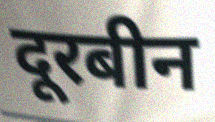
दूरबीन